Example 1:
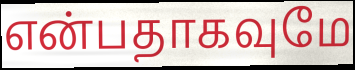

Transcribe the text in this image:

என்பதாகவுமே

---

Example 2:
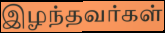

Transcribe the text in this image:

இழந்தவர்கள்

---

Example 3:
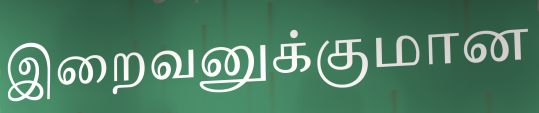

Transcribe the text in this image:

இறைவனுக்குமான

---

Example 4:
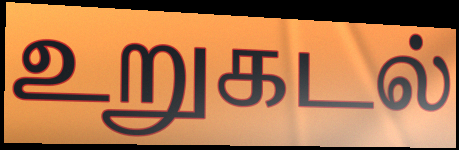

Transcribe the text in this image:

உறுகடல்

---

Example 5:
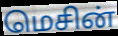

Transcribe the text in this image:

மெசின்